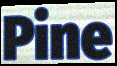
Pine